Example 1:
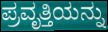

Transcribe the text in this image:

ಪ್ರವೃತ್ತಿಯನ್ನು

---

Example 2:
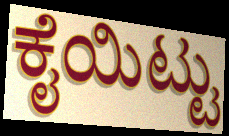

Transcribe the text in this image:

ಕೈಯಿಟ್ಟು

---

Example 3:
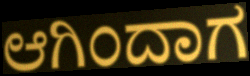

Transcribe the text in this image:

ಆಗಿಂದಾಗ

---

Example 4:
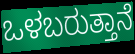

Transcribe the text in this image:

ಒಳಬರುತ್ತಾನೆ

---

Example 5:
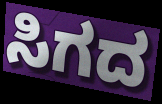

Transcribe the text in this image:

ಸಿಗದ